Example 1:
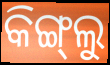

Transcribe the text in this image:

କିଙ୍ଗ୍‌ଲୁ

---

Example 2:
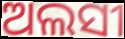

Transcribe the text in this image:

ଅଲସୀ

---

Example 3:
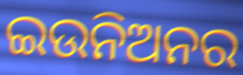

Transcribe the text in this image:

ଇଉନିଅନର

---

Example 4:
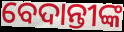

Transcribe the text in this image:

ବେଦାନ୍ତୀଙ୍କ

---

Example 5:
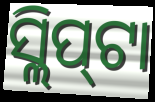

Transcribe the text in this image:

ସ୍ଲିପ୍‌ଟା